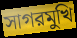
সাগরমুখি